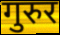
गुरुर